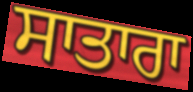
ਸਾਤਾਰਾ